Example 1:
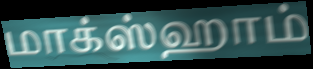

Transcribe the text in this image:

மாக்ஸ்ஹாம்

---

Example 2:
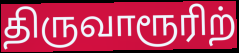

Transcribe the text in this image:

திருவாரூரிற்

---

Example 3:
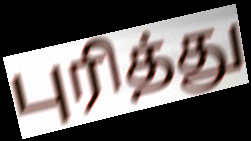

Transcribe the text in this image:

புரித்து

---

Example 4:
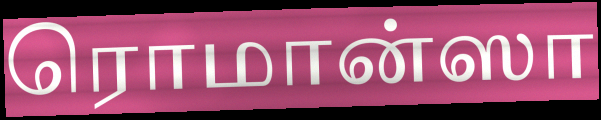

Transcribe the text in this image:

ரொமான்ஸா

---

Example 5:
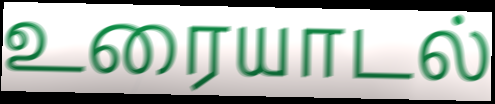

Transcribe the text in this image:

உரையாடல்